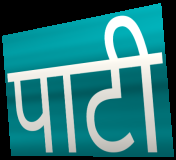
पाटी